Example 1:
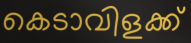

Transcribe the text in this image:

കെടാവിളക്ക്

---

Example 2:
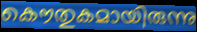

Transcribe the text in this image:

കൌതുകമായിരുന്നു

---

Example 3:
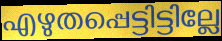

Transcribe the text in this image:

എഴുതപ്പെട്ടിട്ടില്ലേ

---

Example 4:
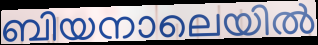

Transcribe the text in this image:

ബിയനാലെയിൽ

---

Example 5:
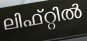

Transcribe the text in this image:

ലിഫ്റ്റിൽ